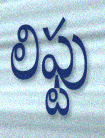
లిఫ్టు